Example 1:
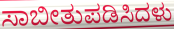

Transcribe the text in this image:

ಸಾಬೀತುಪಡಿಸಿದಳು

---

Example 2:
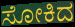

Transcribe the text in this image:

ಸೋಕಿದ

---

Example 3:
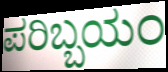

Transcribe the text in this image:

ಪರಿಬ್ಬಯಂ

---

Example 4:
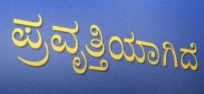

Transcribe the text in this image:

ಪ್ರವೃತ್ತಿಯಾಗಿದೆ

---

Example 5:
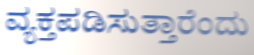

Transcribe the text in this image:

ವ್ಯಕ್ತಪಡಿಸುತ್ತಾರೆಂದು